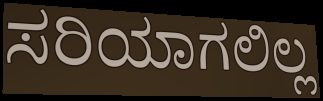
ಸರಿಯಾಗಲಿಲ್ಲ